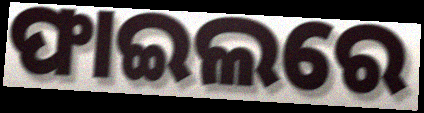
ଫାଇଲରେ